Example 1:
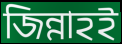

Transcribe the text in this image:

জিন্নাহই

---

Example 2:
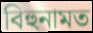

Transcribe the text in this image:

বিহুনামত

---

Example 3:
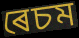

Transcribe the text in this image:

ৰেচম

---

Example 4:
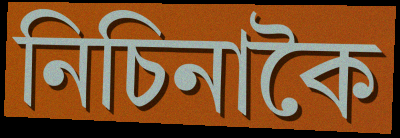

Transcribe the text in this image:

নিচিনাকৈ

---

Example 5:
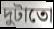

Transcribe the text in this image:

দুটাতো